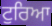
ਟੁਰਿਆ